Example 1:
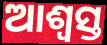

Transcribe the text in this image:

ଆଶ୍ୱସ୍ତ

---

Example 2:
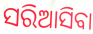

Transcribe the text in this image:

ସରିଆସିବା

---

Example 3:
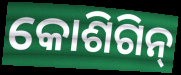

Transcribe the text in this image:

କୋଶିଗିନ୍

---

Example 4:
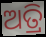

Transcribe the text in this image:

ଅତ୍ରି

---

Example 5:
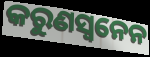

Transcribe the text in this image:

କରୁଣସ୍ଵନେନ